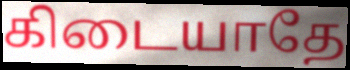
கிடையாதே